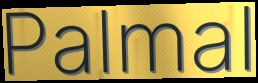
Palmal